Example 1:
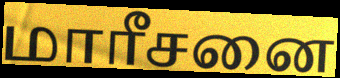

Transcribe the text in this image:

மாரீசனை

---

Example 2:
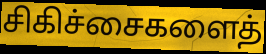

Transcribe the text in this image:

சிகிச்சைகளைத்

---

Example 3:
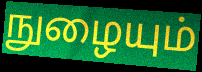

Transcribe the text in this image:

நுழையும்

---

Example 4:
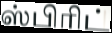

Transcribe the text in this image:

ஸ்பிரிட்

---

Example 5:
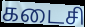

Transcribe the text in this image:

கடைசி